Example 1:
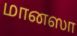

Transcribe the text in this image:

மானஸா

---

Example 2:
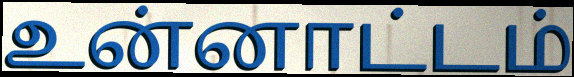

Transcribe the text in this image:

உன்னாட்டம்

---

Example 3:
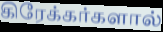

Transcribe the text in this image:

கிரேக்கர்களால்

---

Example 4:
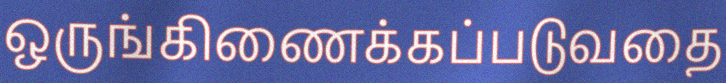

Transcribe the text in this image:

ஒருங்கிணைக்கப்படுவதை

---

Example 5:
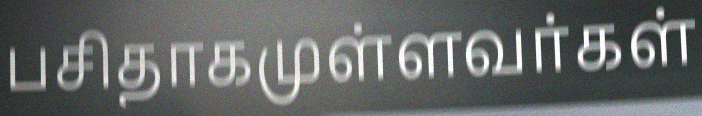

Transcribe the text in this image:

பசிதாகமுள்ளவர்கள்